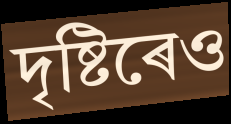
দৃষ্টিৰেও